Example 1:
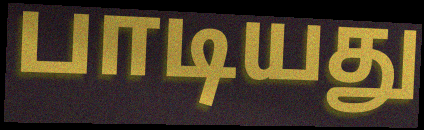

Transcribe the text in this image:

பாடியது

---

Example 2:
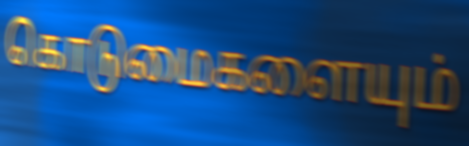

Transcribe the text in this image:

கொடுமைகளையும்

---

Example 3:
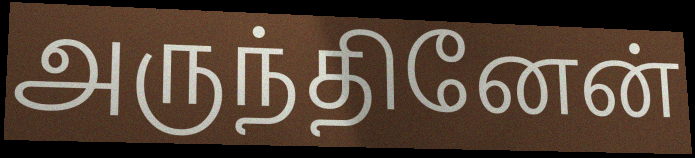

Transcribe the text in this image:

அருந்தினேன்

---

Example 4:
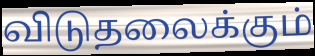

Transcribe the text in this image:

விடுதலைக்கும்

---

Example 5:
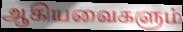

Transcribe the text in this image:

ஆகியவைகளும்